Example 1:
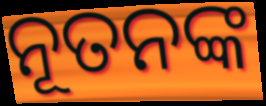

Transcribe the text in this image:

ନୂତନଙ୍କ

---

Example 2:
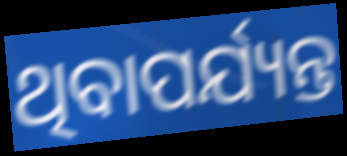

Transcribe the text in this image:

ଥିବାପର୍ଯ୍ୟନ୍ତ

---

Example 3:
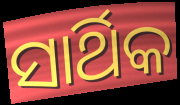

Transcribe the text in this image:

ସାର୍ଥିକ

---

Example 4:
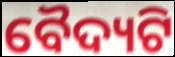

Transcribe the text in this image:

ବୈଦ୍ୟଟି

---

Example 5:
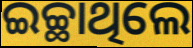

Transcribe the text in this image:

ଇଚ୍ଛାଥିଲେ